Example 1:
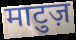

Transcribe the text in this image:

माटुज़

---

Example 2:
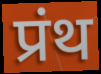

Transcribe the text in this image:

प्रंथ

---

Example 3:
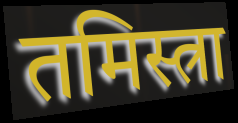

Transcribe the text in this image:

तमिस्त्रा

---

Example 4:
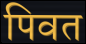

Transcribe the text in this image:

पिवत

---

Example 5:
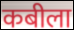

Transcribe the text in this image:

कबीला